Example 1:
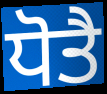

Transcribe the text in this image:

ਧੋਤੈ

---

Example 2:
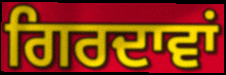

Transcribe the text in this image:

ਗਿਰਦਾਵਾਂ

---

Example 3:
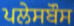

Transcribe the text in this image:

ਪਲੇਸਬੌਸ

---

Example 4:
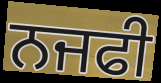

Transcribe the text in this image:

ਨਜਫੀ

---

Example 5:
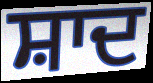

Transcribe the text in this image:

ਸ਼ਾਦ